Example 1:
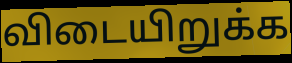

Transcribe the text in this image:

விடையிறுக்க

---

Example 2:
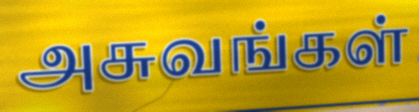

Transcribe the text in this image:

அசுவங்கள்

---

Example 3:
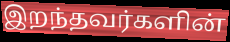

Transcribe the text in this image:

இறந்தவர்களின்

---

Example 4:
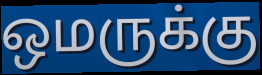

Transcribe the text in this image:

ஒமருக்கு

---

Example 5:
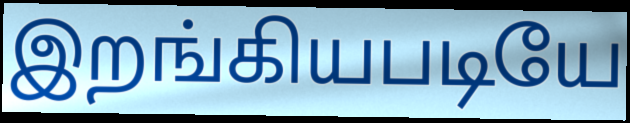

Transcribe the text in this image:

இறங்கியபடியே